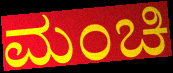
ಮಂಚಿ